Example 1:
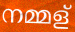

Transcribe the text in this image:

നമ്മള്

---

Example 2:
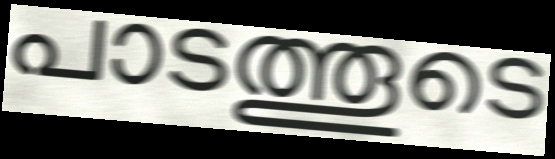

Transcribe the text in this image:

പാടത്തൂടെ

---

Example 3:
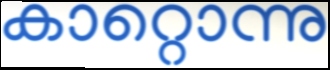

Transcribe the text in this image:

കാറ്റൊന്നു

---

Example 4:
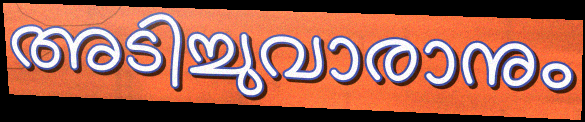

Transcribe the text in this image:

അടിച്ചുവാരാനും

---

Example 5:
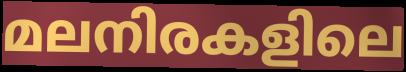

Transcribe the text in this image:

മലനിരകളിലെ